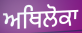
ਅਥਿਲੋਕਾ